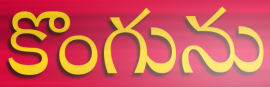
కొంగును